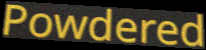
Powdered